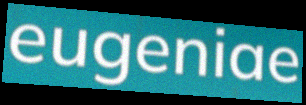
eugeniae